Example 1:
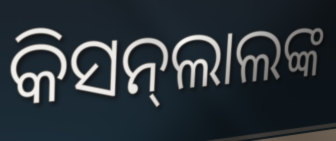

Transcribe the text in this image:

କିସନ୍‌ଲାଲଙ୍କ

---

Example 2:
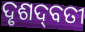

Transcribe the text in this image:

ଦୃଶଦ୍‌ବତୀ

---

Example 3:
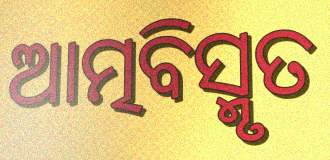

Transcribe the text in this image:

ଆତ୍ମବିସ୍ମୃତ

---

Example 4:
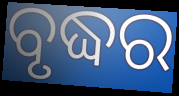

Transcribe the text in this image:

ବୃଦ୍ଧର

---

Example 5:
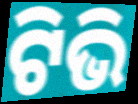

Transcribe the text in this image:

ଟିଭି